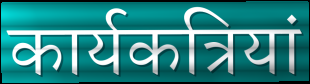
कार्यकत्रियां